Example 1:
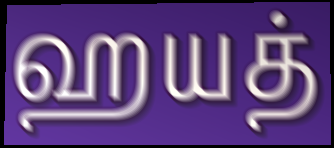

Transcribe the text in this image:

ஹயத்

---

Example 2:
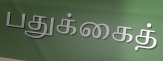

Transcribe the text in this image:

பதுக்கைத்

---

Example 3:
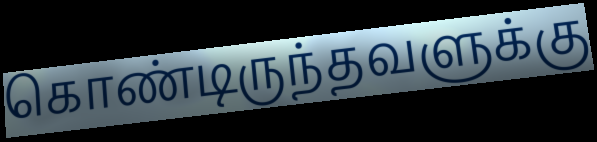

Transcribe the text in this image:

கொண்டிருந்தவளுக்கு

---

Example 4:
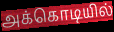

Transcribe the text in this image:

அக்கொடியில்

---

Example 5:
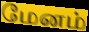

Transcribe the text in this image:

மேனம்